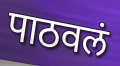
पाठवलं